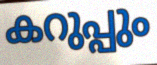
കറുപ്പും